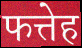
फत्तेह